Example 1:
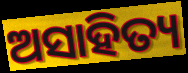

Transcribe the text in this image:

ଅସାହିତ୍ୟ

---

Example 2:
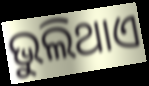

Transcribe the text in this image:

ଭୁଲିଥାଏ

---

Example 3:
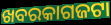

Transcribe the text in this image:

ଖବରକାଗଜଟା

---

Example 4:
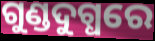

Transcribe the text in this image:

ଗୁଣ୍ଡଦୁଗ୍ଧରେ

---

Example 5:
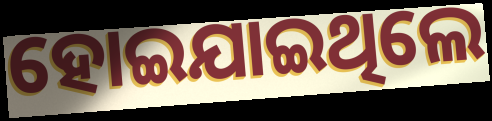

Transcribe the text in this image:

ହୋଇଯାଇଥିଲେ